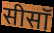
सीसॉ